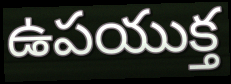
ఉపయుక్త